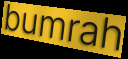
bumrah